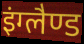
इंग्लैण्ड